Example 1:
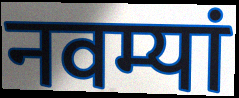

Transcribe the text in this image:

नवम्यां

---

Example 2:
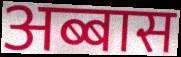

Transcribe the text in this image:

अब्बास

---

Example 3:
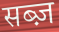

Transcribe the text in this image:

सब्ज़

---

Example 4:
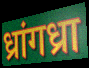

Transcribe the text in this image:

ध्रांगध्रा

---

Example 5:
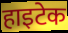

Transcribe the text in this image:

हाइटेक